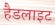
हैडलाइट